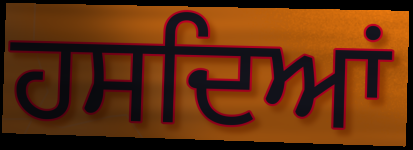
ਹਸਦਿਆਂ